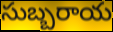
సుబ్బరాయ